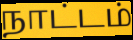
நாட்டம்